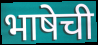
भाषेची